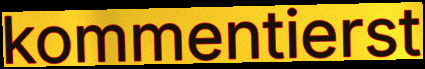
kommentierst